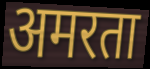
अमरता